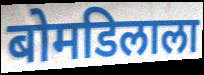
बोमडिलाला